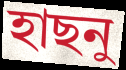
হাছনু